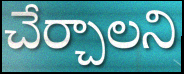
చేర్చాలని